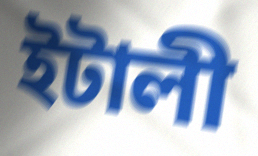
ইটালী